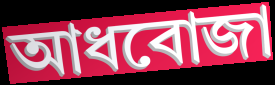
আধবোজা